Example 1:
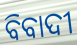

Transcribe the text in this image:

ବିବାଦୀ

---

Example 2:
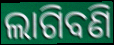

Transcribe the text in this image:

ଲାଗିବଣି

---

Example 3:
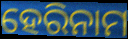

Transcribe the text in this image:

ହେରିନାମ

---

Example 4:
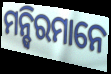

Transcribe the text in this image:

ମନ୍ଦିରମାନେ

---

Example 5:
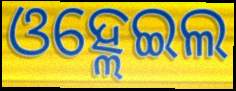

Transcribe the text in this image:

ଓହ୍ଲେଇଲ